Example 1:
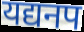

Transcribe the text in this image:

यद्यनप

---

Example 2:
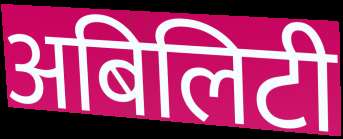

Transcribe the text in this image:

अबिलिटी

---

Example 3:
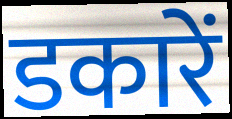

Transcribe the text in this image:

डकारें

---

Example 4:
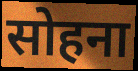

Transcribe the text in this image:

सोहना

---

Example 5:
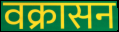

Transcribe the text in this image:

वक्रासन